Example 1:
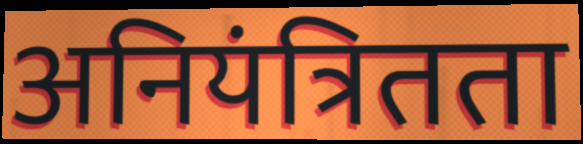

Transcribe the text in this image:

अनियंत्रितता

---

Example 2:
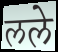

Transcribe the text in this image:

लले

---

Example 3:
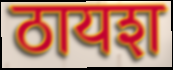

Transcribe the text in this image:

ठायश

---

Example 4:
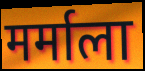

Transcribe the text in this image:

मर्माला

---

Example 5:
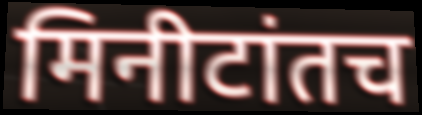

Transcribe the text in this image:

मिनीटांतच